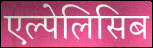
एल्पेलिसिब